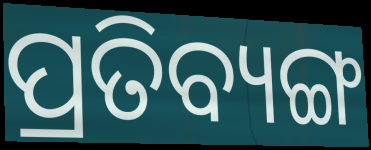
ପ୍ରତିବ୍ୟଙ୍ଗ